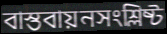
বাস্তবায়নসংশ্লিষ্ট